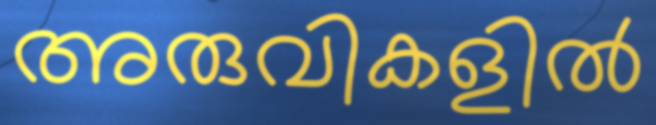
അരുവികളിൽ